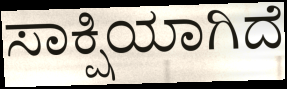
ಸಾಕ್ಷಿಯಾಗಿದೆ